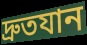
দ্রুতযান